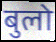
बुलो